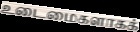
உடைமைகளாகக்